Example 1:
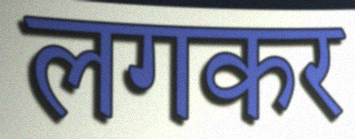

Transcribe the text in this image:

लगकर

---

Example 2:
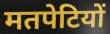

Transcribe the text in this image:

मतपेटियों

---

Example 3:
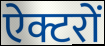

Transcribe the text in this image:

ऐक्टरों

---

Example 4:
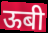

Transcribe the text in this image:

ऊबी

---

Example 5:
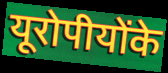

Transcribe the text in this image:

यूरोपीयोंके